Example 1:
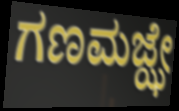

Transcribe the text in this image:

ಗಣಮಜ್ಝೇ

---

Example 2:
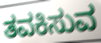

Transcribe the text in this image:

ತವಕಿಸುವ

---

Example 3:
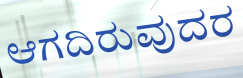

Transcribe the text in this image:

ಆಗದಿರುವುದರ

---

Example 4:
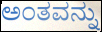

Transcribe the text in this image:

ಅಂತವನ್ನು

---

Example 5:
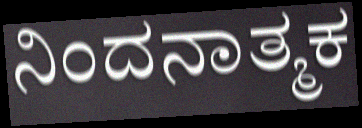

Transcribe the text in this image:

ನಿಂದನಾತ್ಮಕ